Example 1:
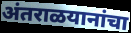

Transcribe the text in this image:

अंतराळयानांचा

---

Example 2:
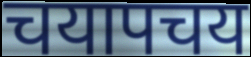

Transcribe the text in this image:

चयापचय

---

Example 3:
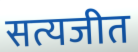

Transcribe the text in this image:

सत्यजीत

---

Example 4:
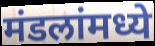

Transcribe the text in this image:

मंडलांमध्ये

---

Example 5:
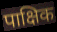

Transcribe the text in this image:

पाक्षिक